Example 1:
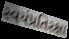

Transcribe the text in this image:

સ્વયંપ્રતિરક્ષા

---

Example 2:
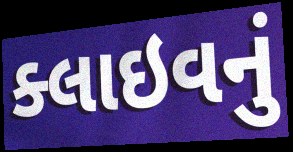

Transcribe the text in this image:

ક્લાઇવનું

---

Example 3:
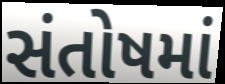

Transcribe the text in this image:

સંતોષમાં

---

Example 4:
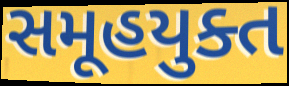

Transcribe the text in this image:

સમૂહયુક્ત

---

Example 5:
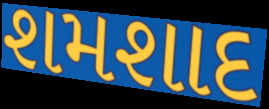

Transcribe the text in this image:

શમશાદ